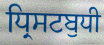
ਧ੍ਰਿਸਟਬੁਧੀ